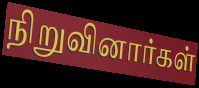
நிறுவினார்கள்